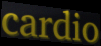
cardio